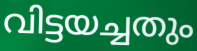
വിട്ടയച്ചതും